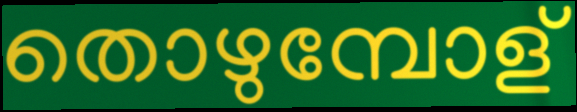
തൊഴുമ്പോള്